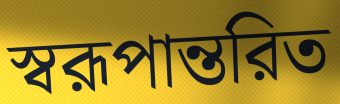
স্বরূপান্তরিত